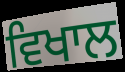
ਵਿਖਾਲ